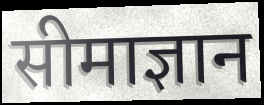
सीमाज्ञान